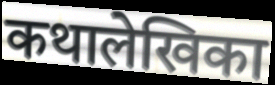
कथालेखिका